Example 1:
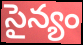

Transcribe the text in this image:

సైన్యం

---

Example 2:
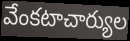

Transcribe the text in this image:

వేంకటాచార్యుల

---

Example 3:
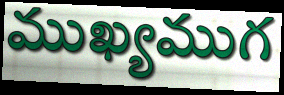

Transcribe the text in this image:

ముఖ్యముగ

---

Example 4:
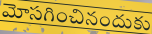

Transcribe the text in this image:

మోసగించినందుకు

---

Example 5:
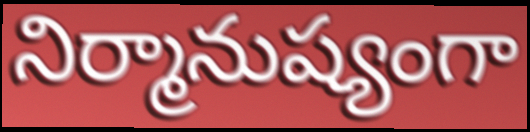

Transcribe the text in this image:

నిర్మానుష్యంగా